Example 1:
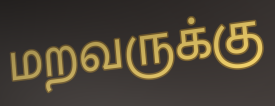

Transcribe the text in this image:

மறவருக்கு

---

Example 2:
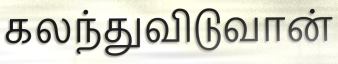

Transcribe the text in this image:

கலந்துவிடுவான்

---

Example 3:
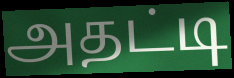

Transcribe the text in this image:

அதட்டி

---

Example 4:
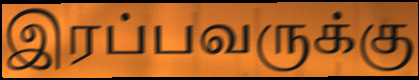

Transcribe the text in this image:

இரப்பவருக்கு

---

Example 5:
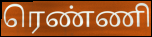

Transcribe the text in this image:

ரெண்ணி